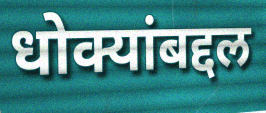
धोक्यांबद्दल